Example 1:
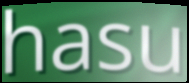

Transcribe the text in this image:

hasu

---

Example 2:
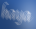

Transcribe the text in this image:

haya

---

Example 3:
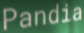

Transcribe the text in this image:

Pandia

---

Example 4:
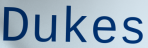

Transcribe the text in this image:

Dukes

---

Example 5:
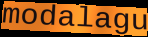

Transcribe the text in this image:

modalagu